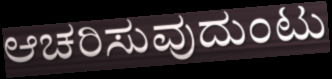
ಆಚರಿಸುವುದುಂಟು